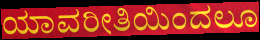
ಯಾವರೀತಿಯಿಂದಲೂ